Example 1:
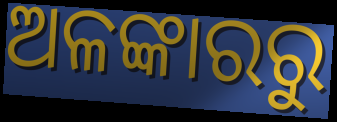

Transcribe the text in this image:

ଅଳଙ୍କାରରୁ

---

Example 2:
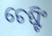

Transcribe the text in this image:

ଚେଷ୍ଟିଂ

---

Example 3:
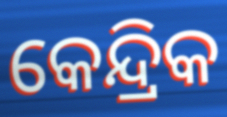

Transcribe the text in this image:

କେନ୍ଦ୍ରିକ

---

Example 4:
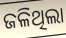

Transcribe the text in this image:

ଜଳିଥିଲା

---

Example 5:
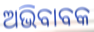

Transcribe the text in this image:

ଅଭିବାବକ